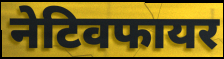
नेटिवफायर